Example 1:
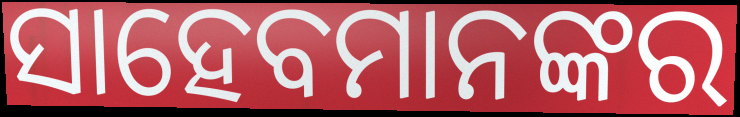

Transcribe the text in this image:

ସାହେବମାନଙ୍କର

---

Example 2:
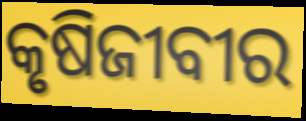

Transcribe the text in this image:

କୃଷିଜୀବୀର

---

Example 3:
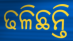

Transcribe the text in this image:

ଢଳିଛନ୍ତି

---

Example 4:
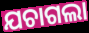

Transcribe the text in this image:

ଯଚାଗଲା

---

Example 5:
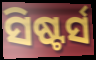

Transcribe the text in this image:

ସିଷ୍ଟର୍ସ